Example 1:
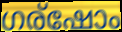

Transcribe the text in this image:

ഗര്ഷോം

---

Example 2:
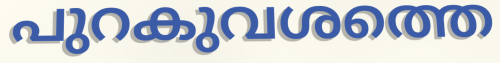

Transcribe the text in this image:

പുറകുവശത്തെ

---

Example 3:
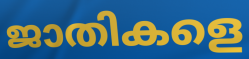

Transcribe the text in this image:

ജാതികളെ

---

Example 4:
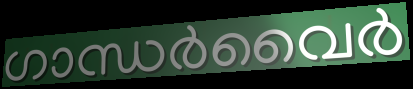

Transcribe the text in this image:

ഗാന്ധർവൈർ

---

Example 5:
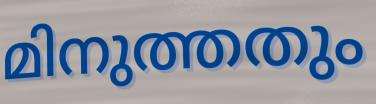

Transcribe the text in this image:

മിനുത്തതും